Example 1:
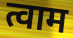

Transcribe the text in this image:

त्वाम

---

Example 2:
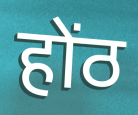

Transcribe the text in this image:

होंठ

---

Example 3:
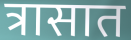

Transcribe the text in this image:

त्रासात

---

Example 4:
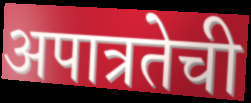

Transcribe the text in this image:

अपात्रतेची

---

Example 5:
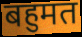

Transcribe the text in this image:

बहुमत